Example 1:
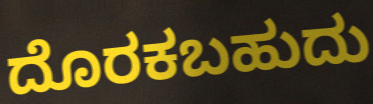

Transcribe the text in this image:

ದೊರಕಬಹುದು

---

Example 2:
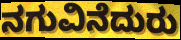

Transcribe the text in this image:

ನಗುವಿನೆದುರು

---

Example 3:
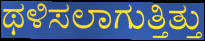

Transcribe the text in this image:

ಥಳಿಸಲಾಗುತ್ತಿತ್ತು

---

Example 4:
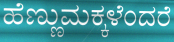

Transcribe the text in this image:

ಹೆಣ್ಣುಮಕ್ಕಳೆಂದರೆ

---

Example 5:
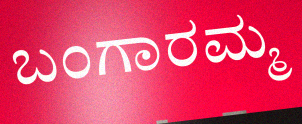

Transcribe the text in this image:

ಬಂಗಾರಮ್ಮ